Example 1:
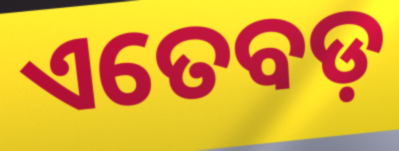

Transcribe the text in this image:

ଏତେବଡ଼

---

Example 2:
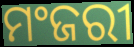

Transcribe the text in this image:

ମଂଜରୀ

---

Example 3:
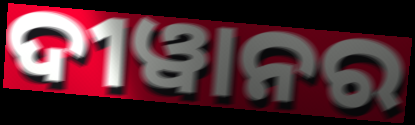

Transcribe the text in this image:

ଦୀୱାନର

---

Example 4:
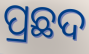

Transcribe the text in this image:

ପ୍ରଛଦ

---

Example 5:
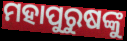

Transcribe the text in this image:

ମହାପୁରୁଷଙ୍କୁ